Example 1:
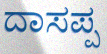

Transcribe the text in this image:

ದಾಸಪ್ಪ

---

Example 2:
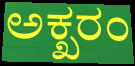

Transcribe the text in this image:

ಅಕ್ಖರಂ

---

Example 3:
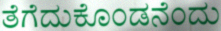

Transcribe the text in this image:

ತೆಗೆದುಕೊಂಡನೆಂದು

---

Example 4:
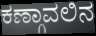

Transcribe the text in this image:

ಕಣ್ಗಾವಲಿನ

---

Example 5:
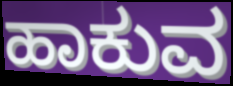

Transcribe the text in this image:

ಹಾಕುವ